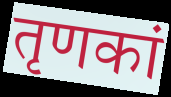
तृणकां